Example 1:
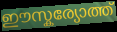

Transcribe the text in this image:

ഈസ്കര്യോത്ത്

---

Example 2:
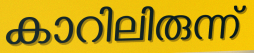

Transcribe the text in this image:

കാറിലിരുന്ന്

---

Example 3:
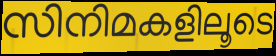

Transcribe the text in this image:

സിനിമകളിലൂടെ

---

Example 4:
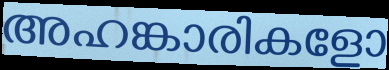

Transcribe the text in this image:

അഹങ്കാരികളോ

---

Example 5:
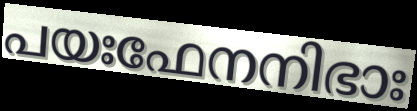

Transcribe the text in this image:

പയഃഫേനനിഭാഃ